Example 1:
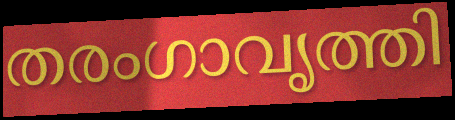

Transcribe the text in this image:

തരംഗാവൃത്തി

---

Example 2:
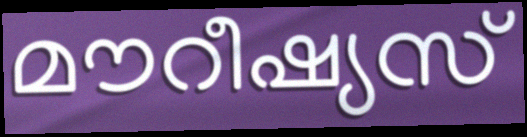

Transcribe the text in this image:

മൗറീഷ്യസ്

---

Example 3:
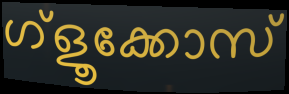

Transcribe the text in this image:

ഗ്ളൂക്കോസ്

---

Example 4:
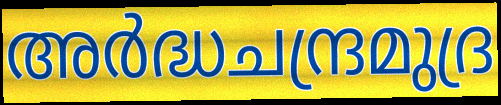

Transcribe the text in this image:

അർദ്ധചന്ദ്രമുദ്ര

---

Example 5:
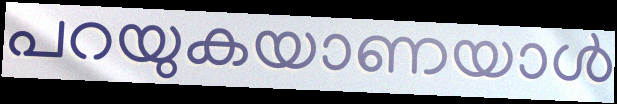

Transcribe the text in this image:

പറയുകയാണയാൾ